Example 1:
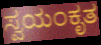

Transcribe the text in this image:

ಸ್ವಯಂಕೃತ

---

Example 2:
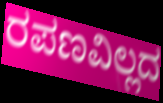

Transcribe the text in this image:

ರಪಣವಿಲ್ಲದ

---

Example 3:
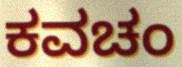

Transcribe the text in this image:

ಕವಚಂ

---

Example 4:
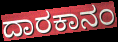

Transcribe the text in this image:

ದಾರಕಾನಂ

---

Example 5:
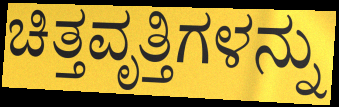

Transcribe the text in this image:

ಚಿತ್ತವೃತ್ತಿಗಳನ್ನು